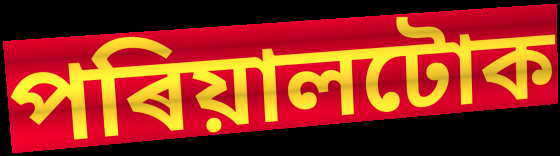
পৰিয়ালটোক